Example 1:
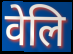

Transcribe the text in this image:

वेलि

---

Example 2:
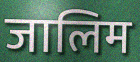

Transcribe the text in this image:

जालिम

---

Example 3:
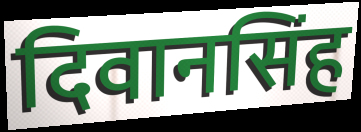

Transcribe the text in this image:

दिवानसिंह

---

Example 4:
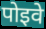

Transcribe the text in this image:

पोइवे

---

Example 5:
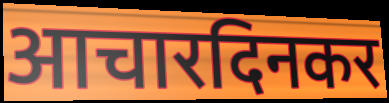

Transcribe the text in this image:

आचारदिनकर